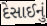
દેસાઈનું